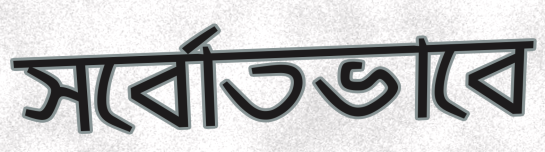
সর্বোতভাবে